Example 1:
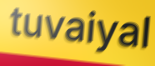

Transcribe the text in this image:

tuvaiyal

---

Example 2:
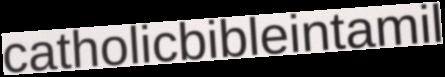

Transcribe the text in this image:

catholicbibleintamil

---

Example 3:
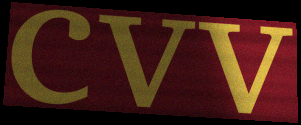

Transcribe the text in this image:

cvv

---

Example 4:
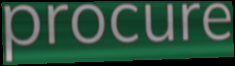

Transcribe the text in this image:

procure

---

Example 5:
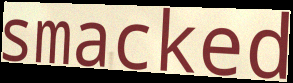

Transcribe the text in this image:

smacked